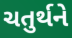
ચતુર્થને